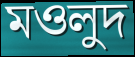
মওলুদ